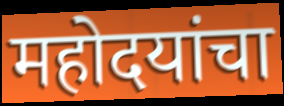
महोदयांचा